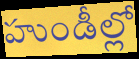
హుండీల్లో